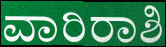
ವಾರಿರಾಶಿ